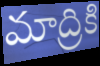
మాద్రికి